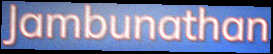
Jambunathan